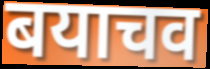
बयाचव